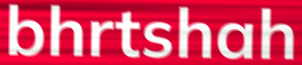
bhrtshah